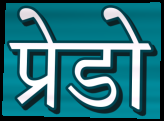
प्रेडो